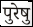
पुरेषु